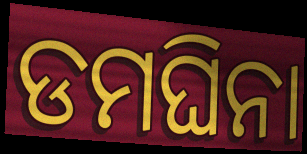
ଡମଘିନା